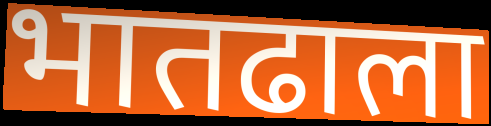
भातढाला